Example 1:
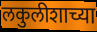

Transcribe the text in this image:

लकुलीशाच्या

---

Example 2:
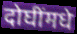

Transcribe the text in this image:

दोघींमधे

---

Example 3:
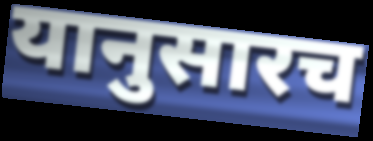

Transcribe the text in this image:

यानुसारच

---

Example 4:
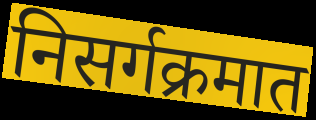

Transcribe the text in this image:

निसर्गक्रमात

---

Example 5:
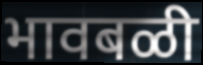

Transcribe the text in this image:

भावबळी